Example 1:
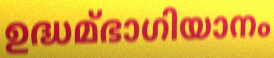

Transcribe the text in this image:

ഉദ്ധമ്ഭാഗിയാനം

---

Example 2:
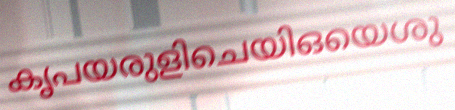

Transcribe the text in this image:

കൃപയരുളിചെയിഒയെശു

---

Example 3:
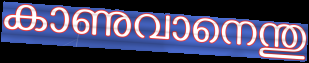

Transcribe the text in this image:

കാണുവാനെന്തു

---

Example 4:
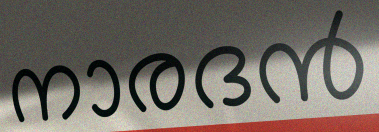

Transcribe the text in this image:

നാരദൻ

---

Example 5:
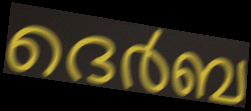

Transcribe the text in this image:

ദെർബ